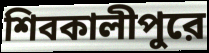
শিবকালীপুরে